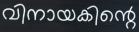
വിനായകിന്റെ